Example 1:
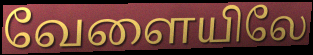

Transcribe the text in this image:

வேளையிலே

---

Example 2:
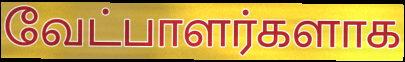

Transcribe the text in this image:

வேட்பாளர்களாக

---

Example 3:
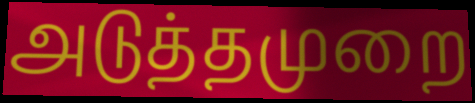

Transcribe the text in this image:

அடுத்தமுறை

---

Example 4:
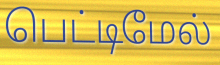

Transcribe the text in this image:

பெட்டிமேல்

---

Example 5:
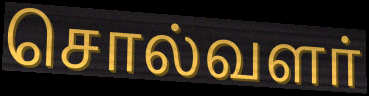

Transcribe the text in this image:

சொல்வளர்